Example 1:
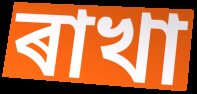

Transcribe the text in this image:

ৰাখা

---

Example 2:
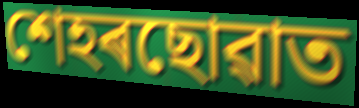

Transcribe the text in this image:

শেহৰছোৱাত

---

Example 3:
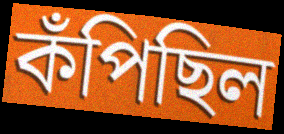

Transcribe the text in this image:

কঁপিছিল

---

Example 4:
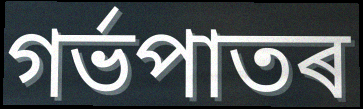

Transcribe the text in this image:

গৰ্ভপাতৰ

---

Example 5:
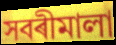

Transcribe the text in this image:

সবৰীমালা